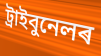
ট্ৰাইবুনেলৰ